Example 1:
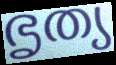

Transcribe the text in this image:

ഭൃത്യ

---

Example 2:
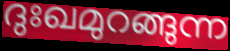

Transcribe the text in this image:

ദുഃഖമുറങ്ങുന്ന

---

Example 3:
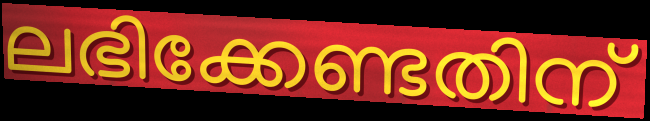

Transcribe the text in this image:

ലഭിക്കേണ്ടതിന്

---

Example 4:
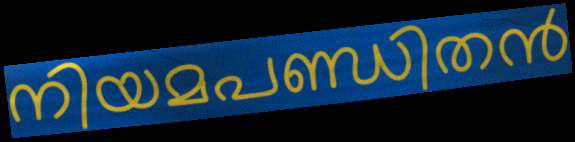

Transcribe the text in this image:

നിയമപണ്ഡിതൻ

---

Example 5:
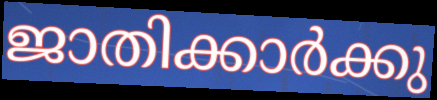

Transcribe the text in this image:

ജാതിക്കാർക്കു